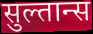
सुल्तान्स